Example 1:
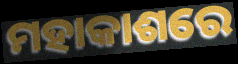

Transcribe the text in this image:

ମହାକାଶରେ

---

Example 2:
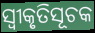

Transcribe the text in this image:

ସ୍ଵୀକୃତିସୂଚକ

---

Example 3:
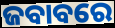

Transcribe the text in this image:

ଜବାବରେ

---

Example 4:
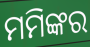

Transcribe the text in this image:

ମମିଙ୍କର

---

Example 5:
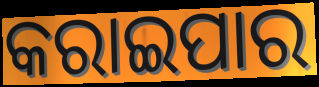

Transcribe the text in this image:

କରାଇପାର